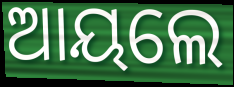
ଆୟଲେ